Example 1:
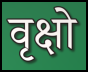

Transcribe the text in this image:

वृक्षो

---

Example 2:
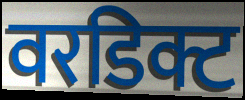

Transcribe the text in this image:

वरडिक्ट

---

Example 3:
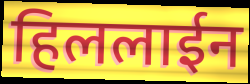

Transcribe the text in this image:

हिललाईन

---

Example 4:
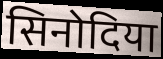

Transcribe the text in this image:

सिनोदिया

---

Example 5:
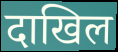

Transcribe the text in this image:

दाखिल